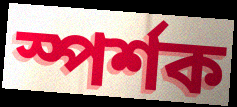
স্পর্শক